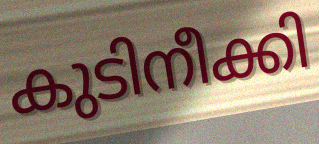
കുടിനീക്കി